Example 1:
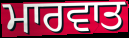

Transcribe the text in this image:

ਮਾਰਵਾਤ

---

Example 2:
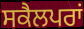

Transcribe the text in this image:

ਸਕੈਲਪਰਾਂ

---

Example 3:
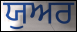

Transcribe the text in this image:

ਯੁਅਰ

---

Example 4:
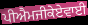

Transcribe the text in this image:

ਪੀਐਮਜੀਕੇਏਵਾਈ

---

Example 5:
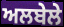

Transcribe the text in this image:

ਅਲਬੇਲੇ